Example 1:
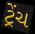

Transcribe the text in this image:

ટ્રેંચ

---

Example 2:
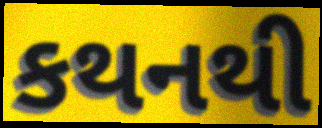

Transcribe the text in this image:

કથનથી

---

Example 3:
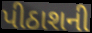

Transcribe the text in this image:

પીઠાશની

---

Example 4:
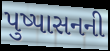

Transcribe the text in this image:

પુષ્પાસનની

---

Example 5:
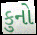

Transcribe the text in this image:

કુનો